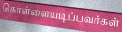
கொள்ளையடிப்பவர்கள்